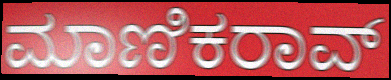
ಮಾಣಿಕರಾವ್